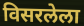
विसरलेला